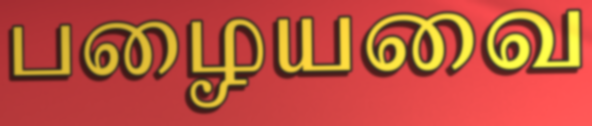
பழையவை